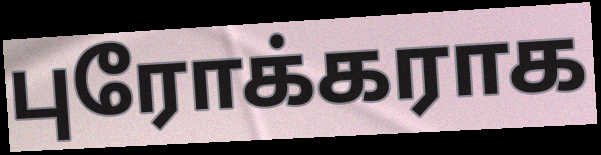
புரோக்கராக